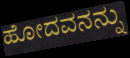
ಹೋದವನನ್ನು